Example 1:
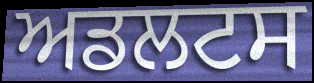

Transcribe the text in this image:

ਅਡਲਟਸ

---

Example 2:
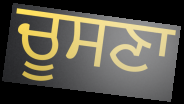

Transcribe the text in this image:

ਚੂਸਣਾ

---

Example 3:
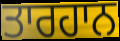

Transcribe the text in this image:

ਤਾਰਹਾਨ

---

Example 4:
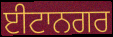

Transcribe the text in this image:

ਈਟਾਨਗਰ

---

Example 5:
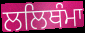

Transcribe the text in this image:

ਲਲਿਥੰਮਾ